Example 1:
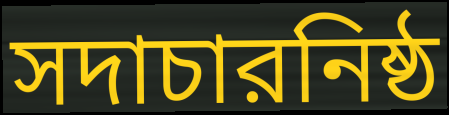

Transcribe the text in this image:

সদাচারনিষ্ঠ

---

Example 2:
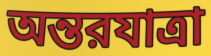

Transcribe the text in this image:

অন্তরযাত্রা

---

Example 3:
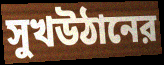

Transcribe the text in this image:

সুখউঠানের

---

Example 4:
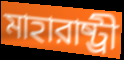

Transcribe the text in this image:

মাহারাষ্ট্রী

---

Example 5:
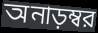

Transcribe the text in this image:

অনাড়ম্বর